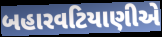
બહારવટિયાણીએ